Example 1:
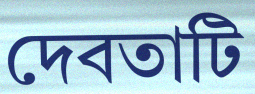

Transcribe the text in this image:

দেবতাটি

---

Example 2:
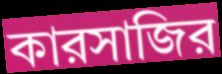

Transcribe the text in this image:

কারসাজির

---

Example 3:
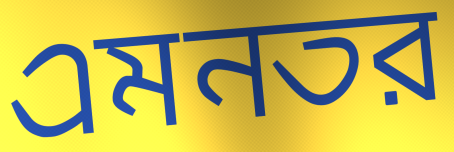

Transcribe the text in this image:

এমনতর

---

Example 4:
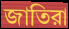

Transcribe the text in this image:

জাতিরা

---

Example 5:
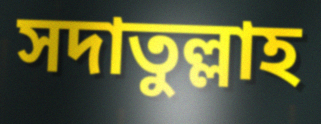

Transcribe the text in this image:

সদাতুল্লাহ